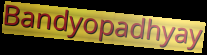
Bandyopadhyay